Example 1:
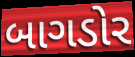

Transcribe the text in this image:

બાગડોર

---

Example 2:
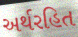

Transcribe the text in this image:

અર્થરહિત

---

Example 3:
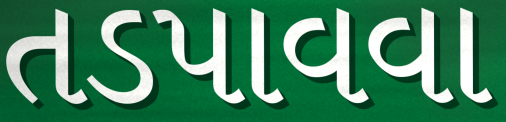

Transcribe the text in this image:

તડપાવવા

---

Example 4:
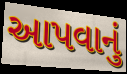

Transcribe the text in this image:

આપવાનું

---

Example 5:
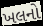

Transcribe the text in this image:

ખલનો